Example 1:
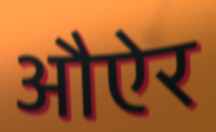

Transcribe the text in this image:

औऐर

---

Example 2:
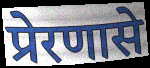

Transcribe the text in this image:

प्रेरणासे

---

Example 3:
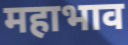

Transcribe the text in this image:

महाभाव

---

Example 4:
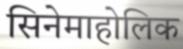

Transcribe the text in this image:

सिनेमाहोलिक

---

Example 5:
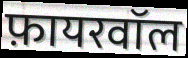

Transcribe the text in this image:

फ़ायरवॉल